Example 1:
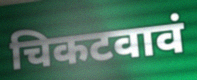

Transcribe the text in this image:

चिकटवावं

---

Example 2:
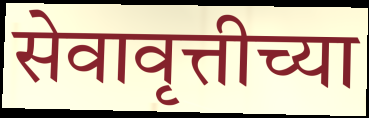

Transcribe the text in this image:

सेवावृत्तीच्या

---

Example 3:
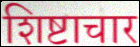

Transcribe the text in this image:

शिष्टाचार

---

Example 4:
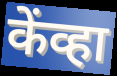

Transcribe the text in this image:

केंव्हा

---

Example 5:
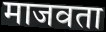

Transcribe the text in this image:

माजवता